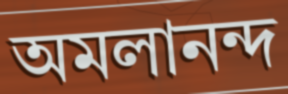
অমলানন্দ